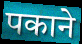
पकाने